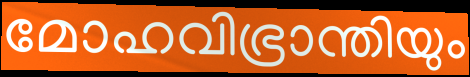
മോഹവിഭ്രാന്തിയും